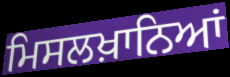
ਮਿਸਲਖ਼ਾਨਿਆਂ